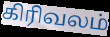
கிரிவலம்